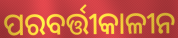
ପରବର୍ତ୍ତୀକାଳୀନ